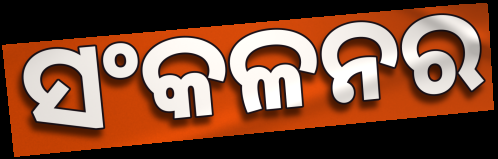
ସଂକଳନର